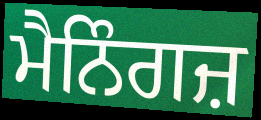
ਮੈਨਿੰਗਜ਼